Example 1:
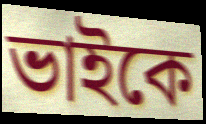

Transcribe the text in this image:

ভাইকে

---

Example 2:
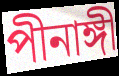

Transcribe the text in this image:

পীনাঙ্গী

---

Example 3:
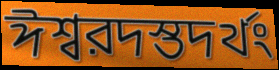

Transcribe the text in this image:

ঈশ্বরদস্তদর্থং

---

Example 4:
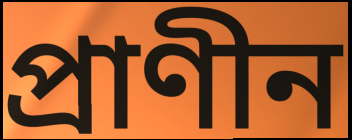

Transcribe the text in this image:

প্রাণীন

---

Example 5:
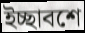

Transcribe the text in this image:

ইচ্ছাবশে